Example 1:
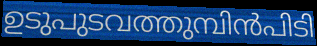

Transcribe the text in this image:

ഉടുപുടവത്തുമ്പിൻപിടി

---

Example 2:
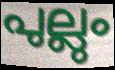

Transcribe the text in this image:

പുല്ലും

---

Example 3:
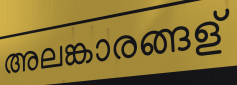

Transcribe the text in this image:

അലങ്കാരങ്ങള്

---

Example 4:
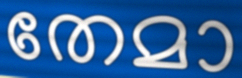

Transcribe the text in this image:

തേമാ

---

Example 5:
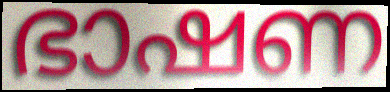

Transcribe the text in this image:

ഭാഷണ